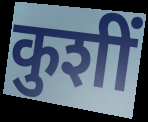
कुशीं